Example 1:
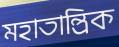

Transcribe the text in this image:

মহাতান্ত্রিক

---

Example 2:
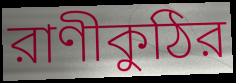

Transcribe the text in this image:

রাণীকুঠির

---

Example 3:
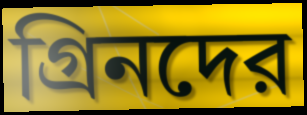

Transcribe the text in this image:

গ্রিনদের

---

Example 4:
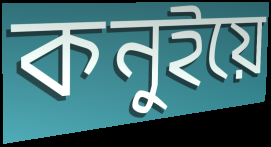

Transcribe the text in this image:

কনুইয়ে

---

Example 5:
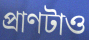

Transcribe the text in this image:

প্রাণটাও